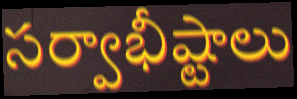
సర్వాభీష్టాలు